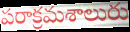
పరాక్రమశాలురు